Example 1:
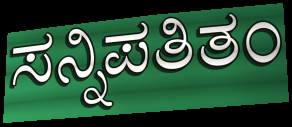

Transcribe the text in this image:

ಸನ್ನಿಪತಿತಂ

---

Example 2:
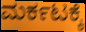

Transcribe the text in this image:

ಮರ್ಕಟಕ್ಕೆ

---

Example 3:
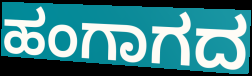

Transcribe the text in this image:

ಹಂಗಾಗದ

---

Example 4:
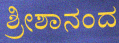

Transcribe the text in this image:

ಶ್ರೀಶಾನಂದ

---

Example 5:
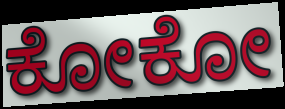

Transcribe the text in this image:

ಕೋಕೋ